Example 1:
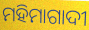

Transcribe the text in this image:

ମହିମାଗାଦୀ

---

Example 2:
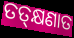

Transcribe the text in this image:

ତତ୍କ୍ଷଣାତ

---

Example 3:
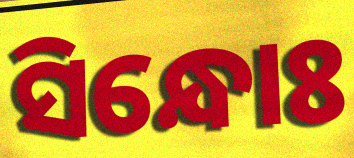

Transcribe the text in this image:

ସିନ୍ଧୋଃ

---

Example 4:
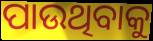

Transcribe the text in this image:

ପାଉଥିବାକୁ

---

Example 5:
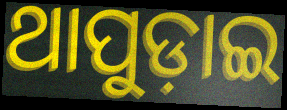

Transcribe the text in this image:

ଥାପୁଡ଼ାଇ